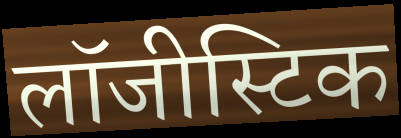
लॉजीस्टिक